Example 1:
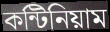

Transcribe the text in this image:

কন্টিনিয়াম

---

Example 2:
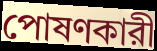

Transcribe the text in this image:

পোষণকারী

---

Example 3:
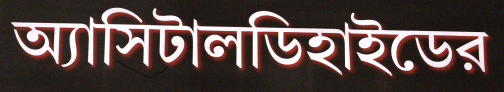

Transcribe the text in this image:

অ্যাসিটালডিহাইডের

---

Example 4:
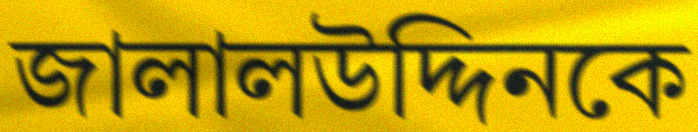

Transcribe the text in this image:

জালালউদ্দিনকে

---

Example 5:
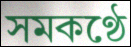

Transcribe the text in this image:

সমকণ্ঠে